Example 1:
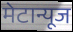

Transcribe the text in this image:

मेटान्यूज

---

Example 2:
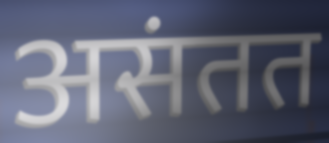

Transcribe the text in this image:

असंतत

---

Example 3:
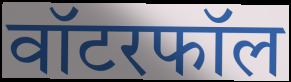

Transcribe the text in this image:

वॉटरफॉल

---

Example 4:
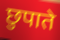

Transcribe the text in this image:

छुपाते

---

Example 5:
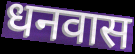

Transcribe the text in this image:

धनवास